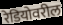
रेडियोवरील